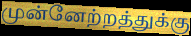
முன்னேற்றத்துக்கு